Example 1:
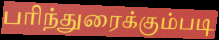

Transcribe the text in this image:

பரிந்துரைக்கும்படி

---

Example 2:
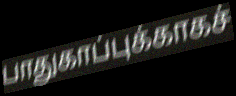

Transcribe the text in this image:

பாதுகாப்புக்காகச்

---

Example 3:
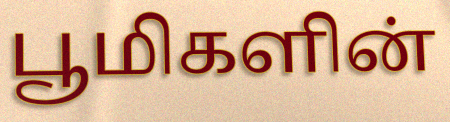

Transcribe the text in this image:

பூமிகளின்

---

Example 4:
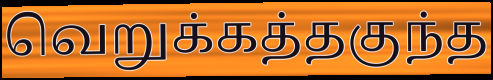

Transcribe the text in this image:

வெறுக்கத்தகுந்த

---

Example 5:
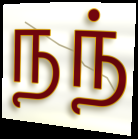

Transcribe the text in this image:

நந்